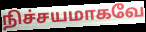
நிச்சயமாகவே